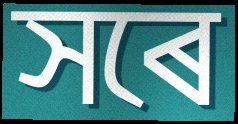
সৰে